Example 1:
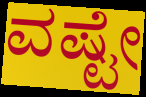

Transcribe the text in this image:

ವಷ್ಟೇ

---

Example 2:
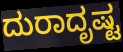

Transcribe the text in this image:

ದುರಾದೃಷ್ಟ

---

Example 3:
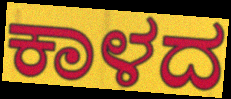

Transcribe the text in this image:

ಕಾಳದ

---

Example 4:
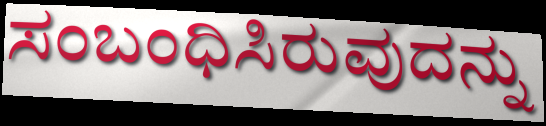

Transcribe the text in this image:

ಸಂಬಂಧಿಸಿರುವುದನ್ನು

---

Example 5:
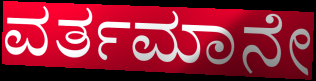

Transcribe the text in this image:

ವರ್ತಮಾನೇ